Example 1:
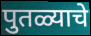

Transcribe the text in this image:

पुतळ्याचे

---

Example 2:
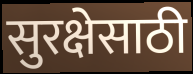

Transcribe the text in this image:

सुरक्षेसाठी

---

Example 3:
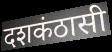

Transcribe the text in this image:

दशकंठासी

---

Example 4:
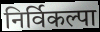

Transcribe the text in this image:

निर्विकल्पा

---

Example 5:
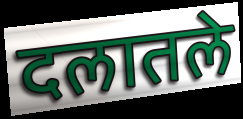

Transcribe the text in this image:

दलातले